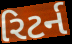
રિટર્ન